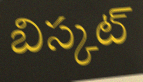
బిస్కట్